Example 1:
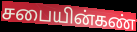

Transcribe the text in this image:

சபையின்கண்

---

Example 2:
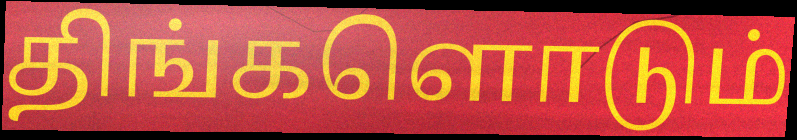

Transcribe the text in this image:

திங்களொடும்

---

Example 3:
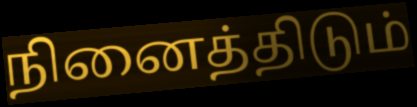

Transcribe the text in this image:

நினைத்திடும்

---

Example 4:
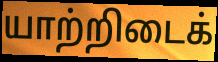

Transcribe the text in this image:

யாற்றிடைக்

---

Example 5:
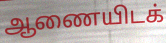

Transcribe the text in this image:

ஆணையிடக்